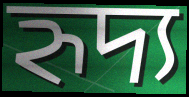
হৃদ্য